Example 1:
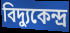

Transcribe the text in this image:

বিদ্যুকেন্দ্র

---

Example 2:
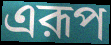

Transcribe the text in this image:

এরূপ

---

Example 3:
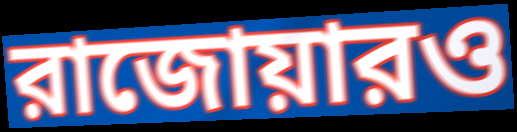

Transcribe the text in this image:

রাজোয়ারও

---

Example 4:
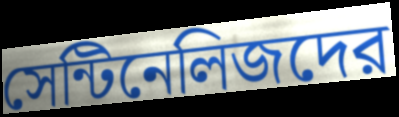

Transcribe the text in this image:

সেন্টিনেলিজদের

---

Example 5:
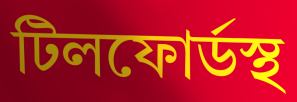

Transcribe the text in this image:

টিলফোর্ডস্থ